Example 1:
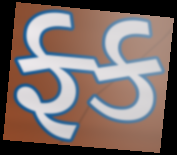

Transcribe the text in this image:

ફ્ક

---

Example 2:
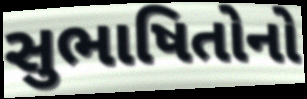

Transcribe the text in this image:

સુભાષિતોનો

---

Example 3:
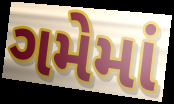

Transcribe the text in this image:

ગમેમાં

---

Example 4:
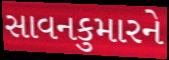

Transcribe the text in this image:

સાવનકુમારને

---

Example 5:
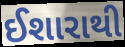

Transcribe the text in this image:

ઈશારાથી